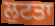
ਲੁਟਤਾ